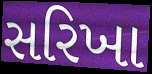
સરિખા